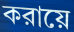
করায়ে